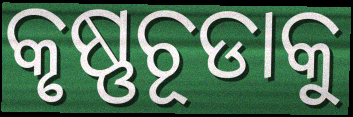
କୃଷ୍ଣଚୂଡାକୁ